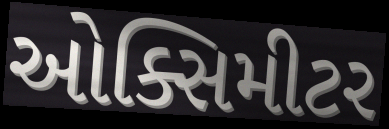
ઓક્સિમીટર